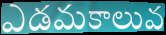
ఎడమకాలువ